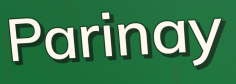
Parinay